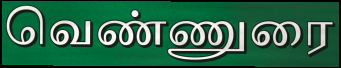
வெண்ணுரை